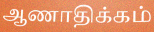
ஆணாதிக்கம்